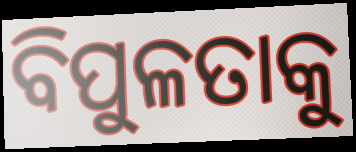
ବିପୁଳତାକୁ